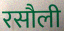
रसौली